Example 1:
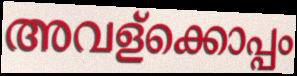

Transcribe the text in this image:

അവള്ക്കൊപ്പം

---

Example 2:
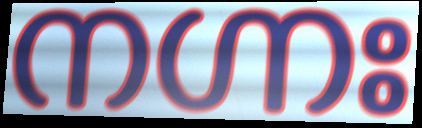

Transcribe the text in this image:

നഗ്നഃ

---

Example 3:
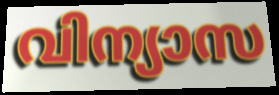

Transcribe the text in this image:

വിന്യാസ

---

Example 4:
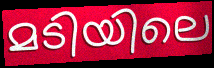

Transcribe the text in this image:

മടിയിലെ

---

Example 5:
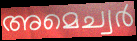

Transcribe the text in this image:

അമെച്വർ